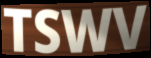
TSWV